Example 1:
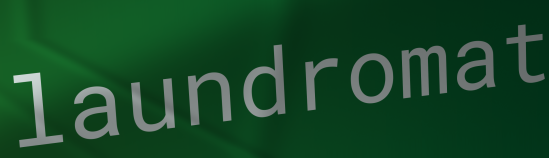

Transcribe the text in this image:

laundromat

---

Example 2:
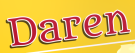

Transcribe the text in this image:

Daren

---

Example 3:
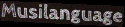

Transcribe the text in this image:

Musilanguage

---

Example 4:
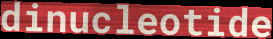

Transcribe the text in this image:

dinucleotide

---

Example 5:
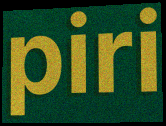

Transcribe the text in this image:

piri